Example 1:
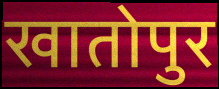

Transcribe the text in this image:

खातोपुर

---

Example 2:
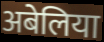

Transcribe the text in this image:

अबेलिया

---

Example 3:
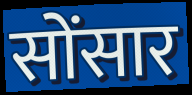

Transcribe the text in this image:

सोंसार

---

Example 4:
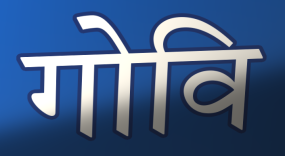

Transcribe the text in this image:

गोवि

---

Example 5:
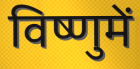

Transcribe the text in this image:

विष्णुमें